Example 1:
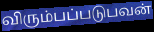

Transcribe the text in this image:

விரும்பப்படுபவன்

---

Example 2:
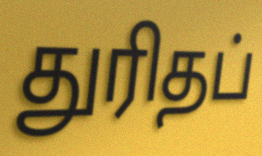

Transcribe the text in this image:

துரிதப்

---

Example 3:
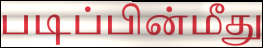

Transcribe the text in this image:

படிப்பின்மீது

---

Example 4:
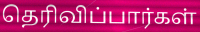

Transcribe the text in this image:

தெரிவிப்பார்கள்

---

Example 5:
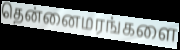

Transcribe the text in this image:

தென்னைமரங்களை